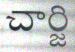
చార్జి